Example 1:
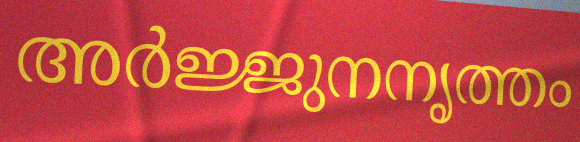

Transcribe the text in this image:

അർജ്ജുനനൃത്തം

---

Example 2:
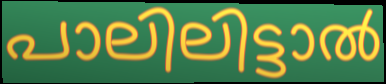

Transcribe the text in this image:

പാലിലിട്ടാൽ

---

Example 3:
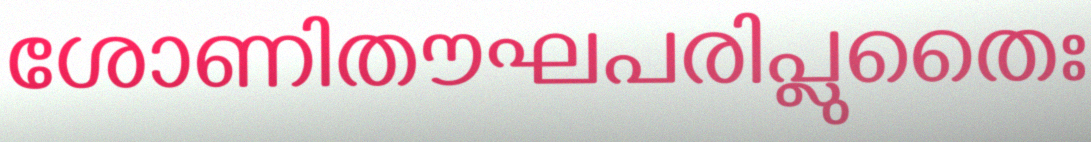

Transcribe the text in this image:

ശോണിതൗഘപരിപ്ലുതൈഃ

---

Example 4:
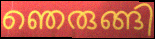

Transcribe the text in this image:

ഞെരുങ്ങി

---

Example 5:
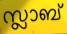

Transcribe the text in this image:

സ്ലാബ്